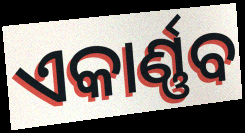
ଏକାର୍ଣ୍ଣବ